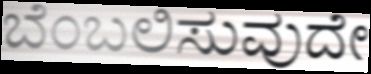
ಬೆಂಬಲಿಸುವುದೇ